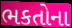
ભકતોના